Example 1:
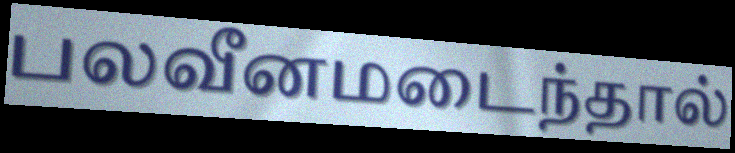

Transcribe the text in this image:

பலவீனமடைந்தால்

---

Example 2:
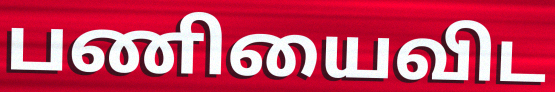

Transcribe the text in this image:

பணியைவிட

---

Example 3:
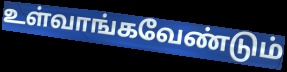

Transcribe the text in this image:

உள்வாங்கவேண்டும்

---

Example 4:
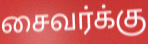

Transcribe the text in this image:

சைவர்க்கு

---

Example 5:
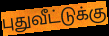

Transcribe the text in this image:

புதுவீட்டுக்கு